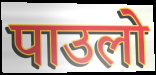
पाउलो